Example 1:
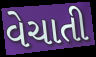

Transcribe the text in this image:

વેચાતી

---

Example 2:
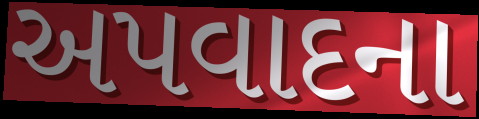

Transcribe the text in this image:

અપવાદના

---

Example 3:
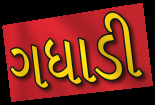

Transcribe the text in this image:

ગધાડી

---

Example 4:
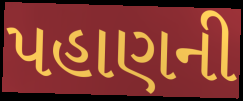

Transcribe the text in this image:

પહાણની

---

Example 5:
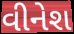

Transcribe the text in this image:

વીનેશ